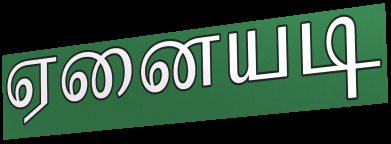
ஏனையடி